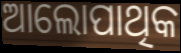
ଆଲୋପାଥିକ